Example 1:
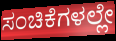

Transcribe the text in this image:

ಸಂಚಿಕೆಗಳಲ್ಲೇ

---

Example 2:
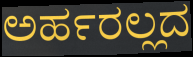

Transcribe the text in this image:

ಅರ್ಹರಲ್ಲದ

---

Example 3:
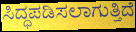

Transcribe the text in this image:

ಸಿದ್ಧಪಡಿಸಲಾಗುತ್ತಿದೆ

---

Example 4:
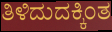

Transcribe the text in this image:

ತಿಳಿದುದಕ್ಕಿಂತ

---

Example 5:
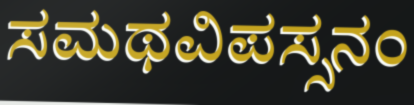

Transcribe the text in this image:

ಸಮಥವಿಪಸ್ಸನಂ